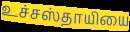
உச்சஸ்தாயியை